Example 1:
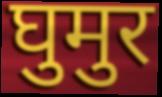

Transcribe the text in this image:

घुमुर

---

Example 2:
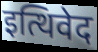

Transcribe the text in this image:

इत्थिवेद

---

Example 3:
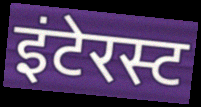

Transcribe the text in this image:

इंटेरस्ट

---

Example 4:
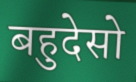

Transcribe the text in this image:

बहुदेसो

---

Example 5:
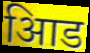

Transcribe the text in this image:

आिड